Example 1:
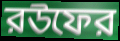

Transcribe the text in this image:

রউফের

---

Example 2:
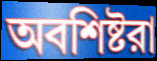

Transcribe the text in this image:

অবশিষ্টরা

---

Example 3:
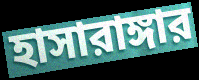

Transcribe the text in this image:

হাসারাঙ্গার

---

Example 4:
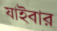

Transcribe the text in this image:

যাইবার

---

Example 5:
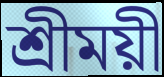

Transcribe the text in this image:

শ্রীময়ী